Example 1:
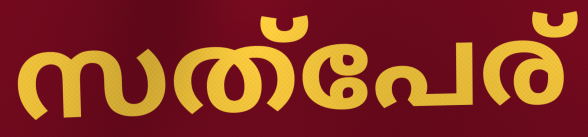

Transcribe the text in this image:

സത്പേര്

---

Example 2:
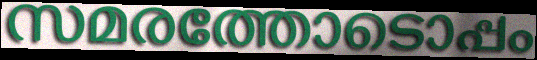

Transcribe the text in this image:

സമരത്തോടൊപ്പം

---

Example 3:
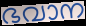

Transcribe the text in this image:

ഭവാന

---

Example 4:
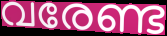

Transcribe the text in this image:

വരേണ്ട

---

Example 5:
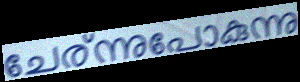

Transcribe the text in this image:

ചേര്ന്നുപോകുന്നു